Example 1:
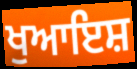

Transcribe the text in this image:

ਖੁਆਇਸ਼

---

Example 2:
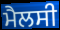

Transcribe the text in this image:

ਮੈਲਸੀ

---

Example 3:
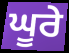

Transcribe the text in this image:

ਘੂਰੇ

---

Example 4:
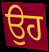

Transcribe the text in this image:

ਉੁਹ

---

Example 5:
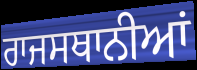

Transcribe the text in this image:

ਰਾਜਸਥਾਨੀਆਂ